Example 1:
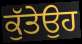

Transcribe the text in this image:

ਕੁੱਤੇਉਹ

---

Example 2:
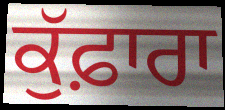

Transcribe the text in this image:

ਕੁੱਫ਼ਾਰਾ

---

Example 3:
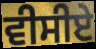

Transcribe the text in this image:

ਵੀਸੀਏ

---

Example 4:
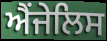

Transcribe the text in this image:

ਐਂਜੇਲਿਸ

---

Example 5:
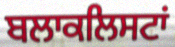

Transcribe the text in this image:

ਬਲਾਕਲਿਸਟਾਂ